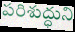
పరిశుద్ధుని